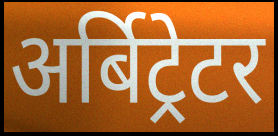
अर्बिट्रेटर